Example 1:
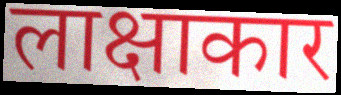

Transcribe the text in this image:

लाक्षाकार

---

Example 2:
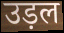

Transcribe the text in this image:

उड़ल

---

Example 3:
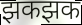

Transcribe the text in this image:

झकझक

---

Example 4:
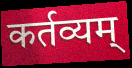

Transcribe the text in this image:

कर्तव्यम्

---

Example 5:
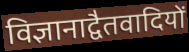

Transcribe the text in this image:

विज्ञानाद्वैतवादियों